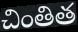
చింతిత